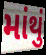
માંથું